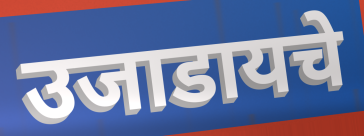
उजाडायचे